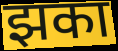
झका